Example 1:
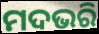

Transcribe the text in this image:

ମଦଭରି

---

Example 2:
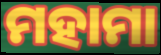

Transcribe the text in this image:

ମହାମା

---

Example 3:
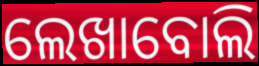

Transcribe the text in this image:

ଲେଖାବୋଲି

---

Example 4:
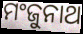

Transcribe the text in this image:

ମଂଜୁନାଥ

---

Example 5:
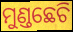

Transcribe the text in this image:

ମୁଣ୍ଡଛେଚି